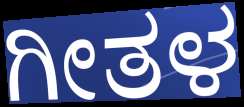
ಗೀತಳ